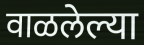
वाळलेल्या